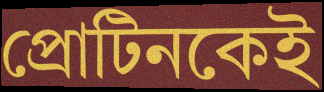
প্রোটিনকেই